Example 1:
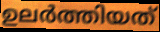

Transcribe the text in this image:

ഉലർത്തിയത്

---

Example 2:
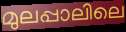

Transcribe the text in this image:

മുലപ്പാലിലെ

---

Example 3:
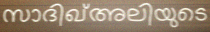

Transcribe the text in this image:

സാദിഖ്അലിയുടെ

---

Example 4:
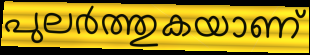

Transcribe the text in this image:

പുലർത്തുകയാണ്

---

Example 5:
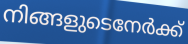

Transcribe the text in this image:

നിങ്ങളുടെനേർക്ക്